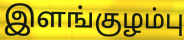
இளங்குழம்பு